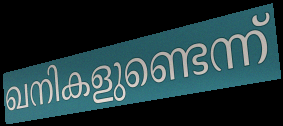
ഖനികളുണ്ടെന്ന്